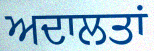
ਅਦਾਲਤਾਂ